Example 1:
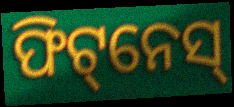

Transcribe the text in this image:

ଫିଟ୍‌ନେସ୍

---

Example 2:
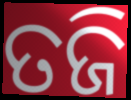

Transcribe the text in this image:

ତଜି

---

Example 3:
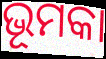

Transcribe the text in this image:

ଭୂମକା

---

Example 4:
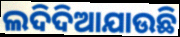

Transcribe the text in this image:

ଲଦିଦିଆଯାଉଛି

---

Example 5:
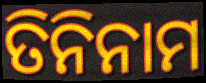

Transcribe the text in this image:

ତିନିନାମ